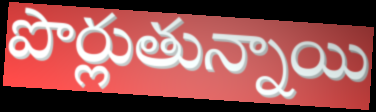
పొర్లుతున్నాయి